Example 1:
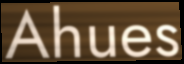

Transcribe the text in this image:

Ahues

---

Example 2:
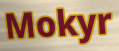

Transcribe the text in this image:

Mokyr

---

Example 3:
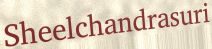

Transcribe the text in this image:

Sheelchandrasuri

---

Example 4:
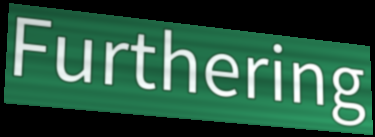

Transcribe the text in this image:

Furthering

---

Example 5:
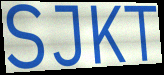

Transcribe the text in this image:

SJKT